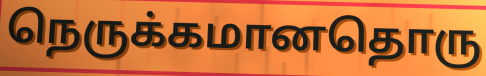
நெருக்கமானதொரு